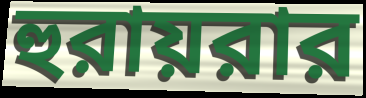
হুরায়রার